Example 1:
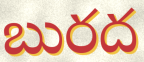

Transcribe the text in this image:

బురద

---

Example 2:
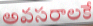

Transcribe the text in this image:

అవసరాలకే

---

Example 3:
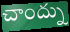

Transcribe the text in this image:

చాంద్ను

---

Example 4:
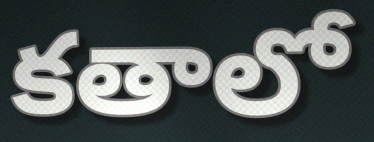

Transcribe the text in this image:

కతాలో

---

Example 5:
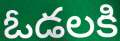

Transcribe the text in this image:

ఓడలకి